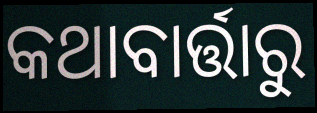
କଥାବାର୍ତ୍ତାରୁ